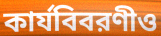
কার্যবিবরণীও